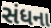
સંધના